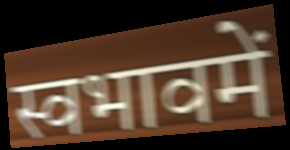
स्वभावमें